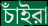
চাঁইরা